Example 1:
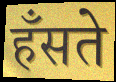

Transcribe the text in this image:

हँसते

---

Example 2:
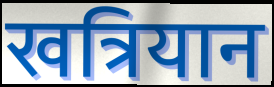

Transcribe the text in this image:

खत्रियान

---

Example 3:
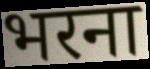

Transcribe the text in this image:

भरना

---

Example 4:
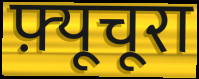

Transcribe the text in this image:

फ़्यूचूरा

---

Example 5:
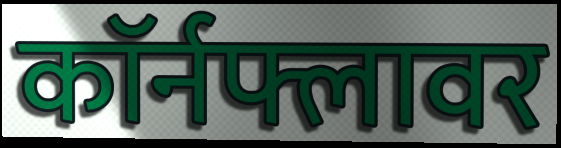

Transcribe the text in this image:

कॉर्नफ्लावर